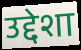
उद्देशा